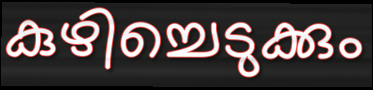
കുഴിച്ചെടുക്കും